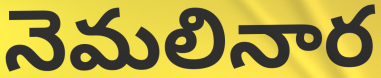
నెమలినార